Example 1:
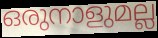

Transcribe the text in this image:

ഒരുനാളുമല്ല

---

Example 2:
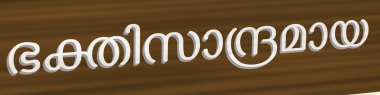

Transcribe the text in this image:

ഭക്തിസാന്ദ്രമായ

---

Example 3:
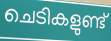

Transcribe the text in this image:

ചെടികളുണ്ട്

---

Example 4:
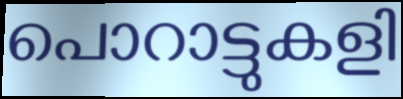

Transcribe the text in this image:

പൊറാട്ടുകളി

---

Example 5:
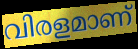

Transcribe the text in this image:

വിരളമാണ്